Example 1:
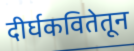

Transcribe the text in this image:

दीर्घकवितेतून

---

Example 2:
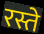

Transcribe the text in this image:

रस्ते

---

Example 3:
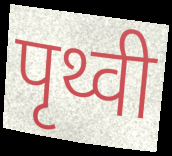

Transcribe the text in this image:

पृथ्वी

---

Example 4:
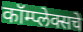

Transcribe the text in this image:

कॉम्प्लेक्सचे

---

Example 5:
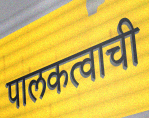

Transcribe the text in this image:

पालकत्वाची